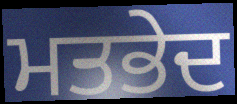
ਮਤਭੇਦ